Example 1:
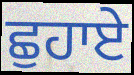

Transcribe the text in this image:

ਛੁਹਾਏ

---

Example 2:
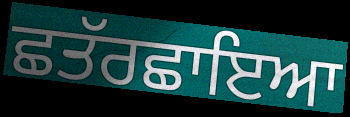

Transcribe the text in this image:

ਛਤੱਰਛਾਇਆ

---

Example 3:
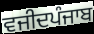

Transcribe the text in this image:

ਵਜੀਦਪੰਜਾਬ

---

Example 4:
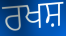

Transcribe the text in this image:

ਰਖਸ਼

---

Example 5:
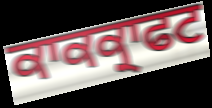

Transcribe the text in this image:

ਕਾਕਕ੍ਰਾਫਟ